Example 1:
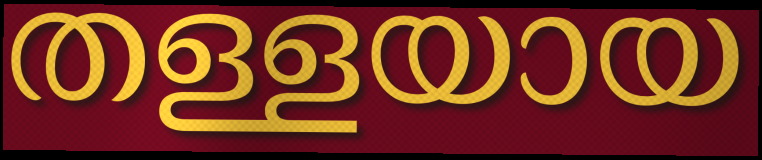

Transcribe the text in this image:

തള്ളയായ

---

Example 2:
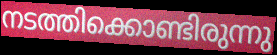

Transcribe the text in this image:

നടത്തിക്കൊണ്ടിരുന്നു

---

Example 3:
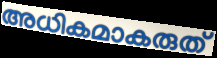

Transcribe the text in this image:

അധികമാകരുത്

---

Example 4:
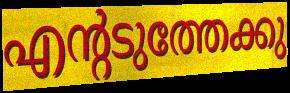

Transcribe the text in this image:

എന്റടുത്തേക്കു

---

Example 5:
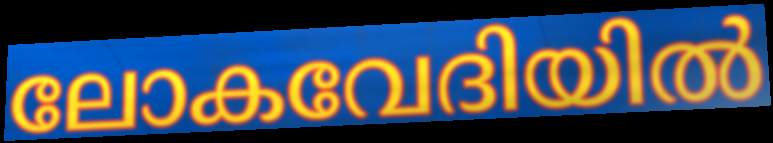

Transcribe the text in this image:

ലോകവേദിയിൽ